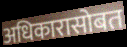
अधिकारासोबत